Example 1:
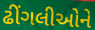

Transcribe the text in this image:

ઢીંગલીઓને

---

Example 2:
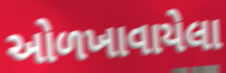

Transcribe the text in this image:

ઓળખાવાયેલા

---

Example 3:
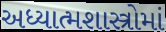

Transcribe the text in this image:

અધ્યાત્મશાસ્ત્રોમાં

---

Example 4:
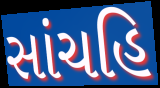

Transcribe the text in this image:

સાંચહિ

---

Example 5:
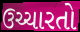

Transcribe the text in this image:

ઉચ્ચારતો